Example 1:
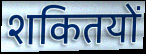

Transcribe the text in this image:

शकितयों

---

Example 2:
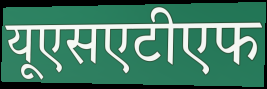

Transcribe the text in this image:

यूएसएटीएफ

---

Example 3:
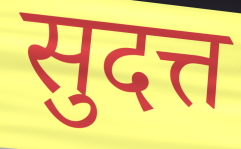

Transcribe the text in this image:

सुदत्त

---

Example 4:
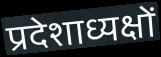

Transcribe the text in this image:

प्रदेशाध्यक्षों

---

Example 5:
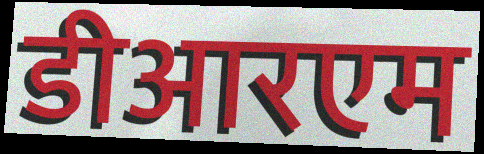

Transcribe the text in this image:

डीआरएम